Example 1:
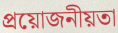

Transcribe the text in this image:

প্রয়োজনীয়তা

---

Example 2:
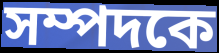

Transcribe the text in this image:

সম্পদকে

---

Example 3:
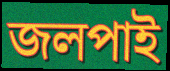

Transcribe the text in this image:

জলপাই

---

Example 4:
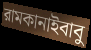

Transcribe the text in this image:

রামকানাইবাবু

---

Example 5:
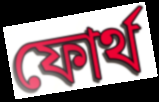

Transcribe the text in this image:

ফোর্থ